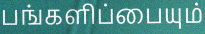
பங்களிப்பையும்